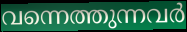
വന്നെത്തുന്നവർ